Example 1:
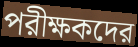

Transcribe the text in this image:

পরীক্ষকদের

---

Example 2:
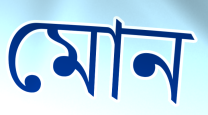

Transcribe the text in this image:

মোন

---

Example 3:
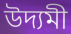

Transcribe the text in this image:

উদ্যমী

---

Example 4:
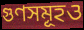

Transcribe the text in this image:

গুণসমূহও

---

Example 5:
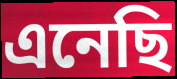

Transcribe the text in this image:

এনেছি